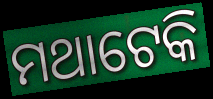
ମଥାଟେକି